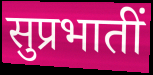
सुप्रभातीं